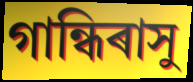
গান্ধিৰাসু